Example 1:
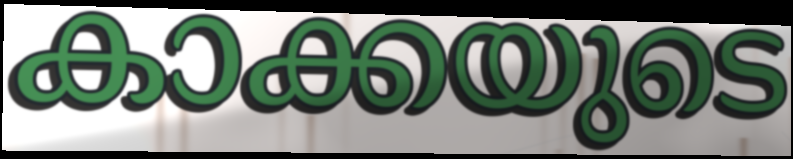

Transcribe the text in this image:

കാക്കയുടെ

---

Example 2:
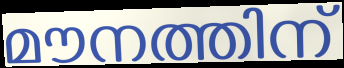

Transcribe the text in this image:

മൗനത്തിന്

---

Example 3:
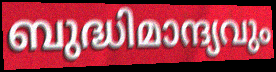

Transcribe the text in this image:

ബുദ്ധിമാന്ദ്യവും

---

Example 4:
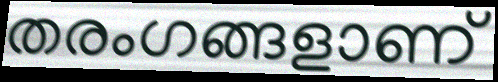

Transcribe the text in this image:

തരംഗങ്ങളാണ്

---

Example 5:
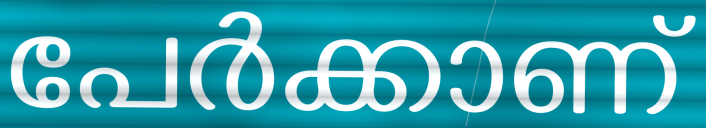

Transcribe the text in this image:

പേർക്കാണ്